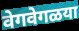
वेगवेगळया